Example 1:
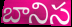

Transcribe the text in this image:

బానిస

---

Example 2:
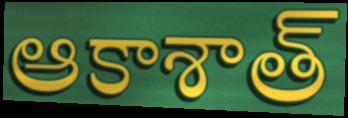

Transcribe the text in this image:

ఆకాశాత్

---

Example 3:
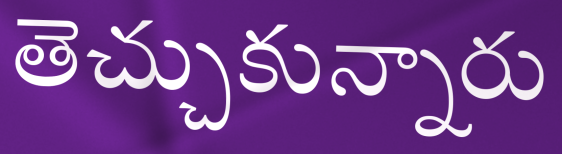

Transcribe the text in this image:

తెచ్చుకున్నారు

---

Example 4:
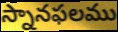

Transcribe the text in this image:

స్నానఫలము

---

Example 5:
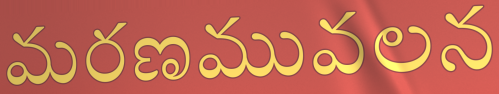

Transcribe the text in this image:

మరణమువలన